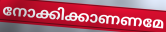
നോക്കിക്കാണണമേ